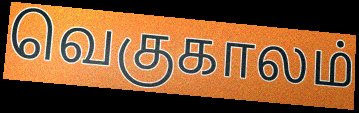
வெகுகாலம்